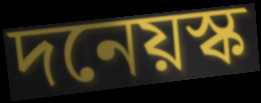
দনেয়স্ক